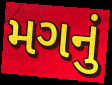
મગનું